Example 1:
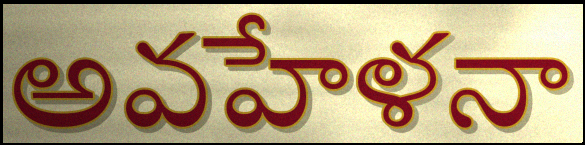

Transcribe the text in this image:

అవహేళనా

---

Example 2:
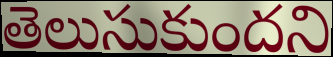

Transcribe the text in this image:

తెలుసుకుందని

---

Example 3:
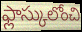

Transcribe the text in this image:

ఫ్లాస్కులోంచి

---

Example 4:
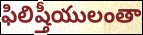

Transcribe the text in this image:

ఫిలిష్తీయులంతా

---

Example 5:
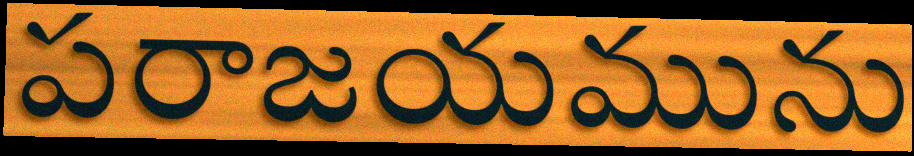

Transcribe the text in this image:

పరాజయమును